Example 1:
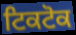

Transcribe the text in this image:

ਟਿਕਟੋਕ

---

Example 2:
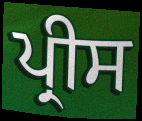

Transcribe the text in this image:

ਪ੍ਰੀਸ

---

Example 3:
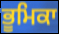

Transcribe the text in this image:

ਭੂਮਿਕਾ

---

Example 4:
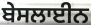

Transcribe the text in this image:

ਬੇਸਲਾਈਨ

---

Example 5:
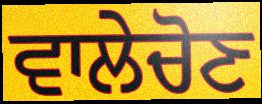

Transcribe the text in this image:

ਵਾਲੇਚੋਣ